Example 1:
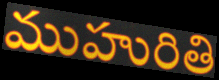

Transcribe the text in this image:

ముహురితి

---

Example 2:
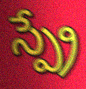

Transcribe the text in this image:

స్ప్రే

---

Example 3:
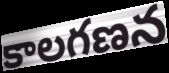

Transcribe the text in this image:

కాలగణన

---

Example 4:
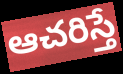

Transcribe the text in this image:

ఆచరిస్తే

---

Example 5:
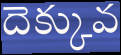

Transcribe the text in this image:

దెక్కువ